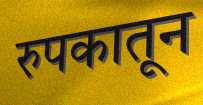
रुपकातून